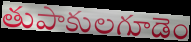
తుపాకులగూడెం